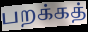
பறக்கத்